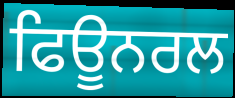
ਫਿਊਨਰਲ